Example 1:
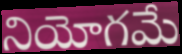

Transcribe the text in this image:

నియోగమే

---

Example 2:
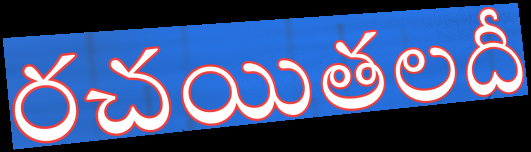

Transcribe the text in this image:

రచయితలదీ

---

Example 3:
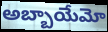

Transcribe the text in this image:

అబ్బాయేమో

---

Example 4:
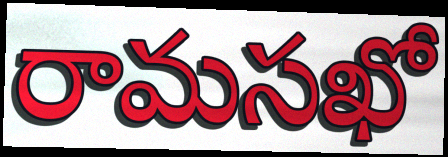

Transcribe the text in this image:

రామసఖో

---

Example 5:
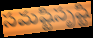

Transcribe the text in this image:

సమష్టిసృష్టి